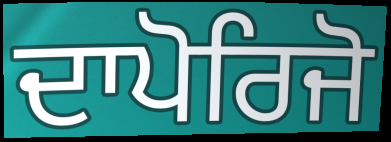
ਦਾਪੋਰਿਜੋ